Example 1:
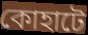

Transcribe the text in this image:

কোহাটে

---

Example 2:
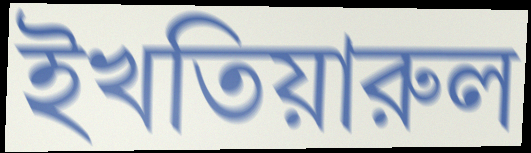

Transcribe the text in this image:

ইখতিয়ারুল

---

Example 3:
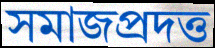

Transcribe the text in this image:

সমাজপ্রদত্ত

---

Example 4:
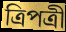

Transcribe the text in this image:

ত্রিপত্রী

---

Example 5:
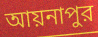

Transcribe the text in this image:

আয়নাপুর